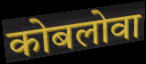
कोबलोवा